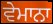
ਵੇਮਾਨਾ